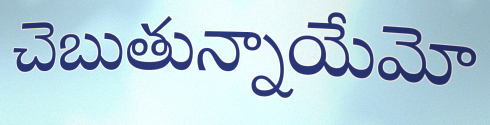
చెబుతున్నాయేమో